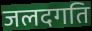
जलदगति